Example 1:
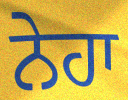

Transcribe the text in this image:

ਨੇਹਾ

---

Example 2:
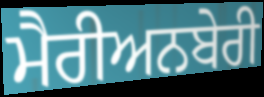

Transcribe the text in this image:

ਮੈਰੀਅਨਬੇਰੀ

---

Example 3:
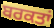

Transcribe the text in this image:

ਬਰਕਤਾਂ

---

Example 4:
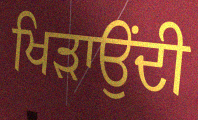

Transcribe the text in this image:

ਖਿੜਾਉਂਦੀ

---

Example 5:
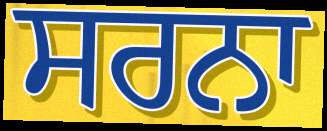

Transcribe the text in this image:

ਸਰਨਾ